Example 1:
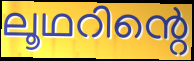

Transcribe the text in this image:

ലൂഥറിന്റെ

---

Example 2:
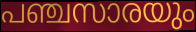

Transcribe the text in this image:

പഞ്ചസാരയും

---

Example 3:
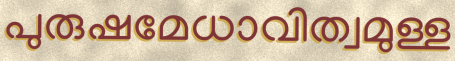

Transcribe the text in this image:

പുരുഷമേധാവിത്വമുള്ള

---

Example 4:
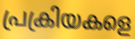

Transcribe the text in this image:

പ്രക്രിയകളെ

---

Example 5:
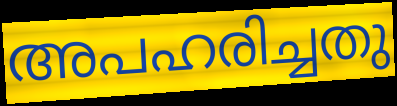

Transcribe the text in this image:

അപഹരിച്ചതു